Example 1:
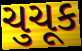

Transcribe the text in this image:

ચુચૂક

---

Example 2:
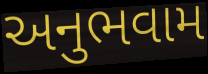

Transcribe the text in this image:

અનુભવામ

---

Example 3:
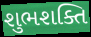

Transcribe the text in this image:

શુભશક્તિ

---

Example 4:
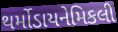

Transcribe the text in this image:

થર્મોડાયનેમિકલી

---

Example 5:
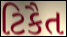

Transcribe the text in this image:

ટિકૈત